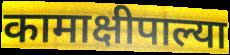
कामाक्षीपाल्या